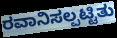
ರವಾನಿಸಲ್ಪಟ್ಟಿತು